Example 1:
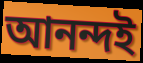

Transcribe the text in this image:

আনন্দই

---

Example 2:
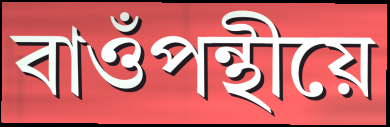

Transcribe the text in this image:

বাওঁপন্থীয়ে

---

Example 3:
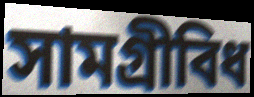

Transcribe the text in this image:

সামগ্ৰীবিধ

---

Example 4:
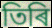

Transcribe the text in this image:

তিৰি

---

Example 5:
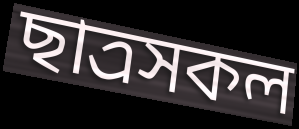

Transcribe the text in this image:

ছাত্ৰসকল